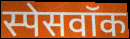
स्पेसवॉक